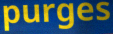
purges